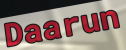
Daarun